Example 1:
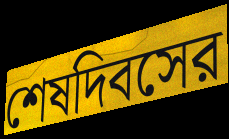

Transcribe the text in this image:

শেষদিবসের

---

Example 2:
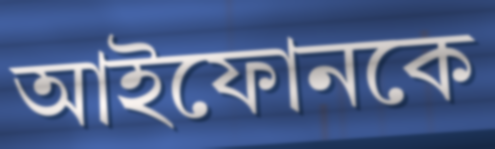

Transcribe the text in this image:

আইফোনকে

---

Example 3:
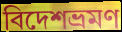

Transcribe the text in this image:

বিদেশভ্রমণ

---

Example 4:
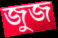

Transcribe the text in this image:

জুজ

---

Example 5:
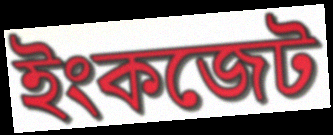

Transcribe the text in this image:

ইংকজেট